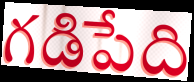
గడిపేది